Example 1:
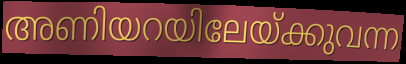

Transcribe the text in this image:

അണിയറയിലേയ്ക്കുവന്ന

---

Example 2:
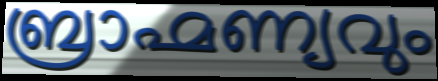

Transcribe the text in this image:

ബ്രാഹ്മണ്യവും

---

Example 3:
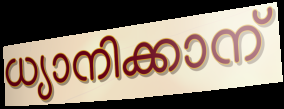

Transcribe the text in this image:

ധ്യാനിക്കാന്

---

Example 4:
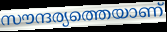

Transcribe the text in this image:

സൗന്ദര്യത്തെയാണ്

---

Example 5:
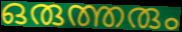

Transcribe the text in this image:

ഒരുത്തരും